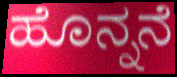
ಹೊನ್ನನೆ